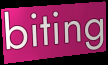
biting